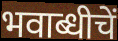
भवाब्धीचें